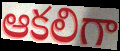
ఆకలిగా